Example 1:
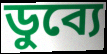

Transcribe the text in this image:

ডুব্যে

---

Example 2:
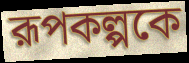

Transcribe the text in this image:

রূপকল্পকে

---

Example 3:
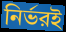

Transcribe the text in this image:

নির্ভরই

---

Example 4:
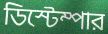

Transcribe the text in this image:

ডিস্টেম্পার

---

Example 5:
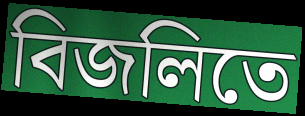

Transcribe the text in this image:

বিজলিতে